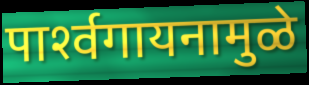
पार्श्वगायनामुळे